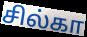
சில்கா